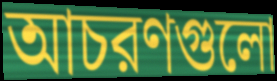
আচরণগুলো